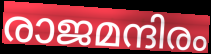
രാജമന്ദിരം